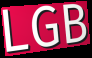
LGB